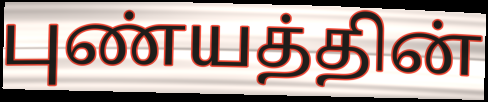
புண்யத்தின்